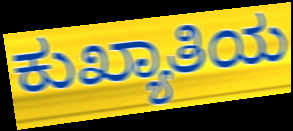
ಕುಖ್ಯಾತಿಯ